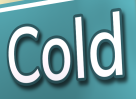
Cold